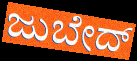
ಜುಬೇದ್